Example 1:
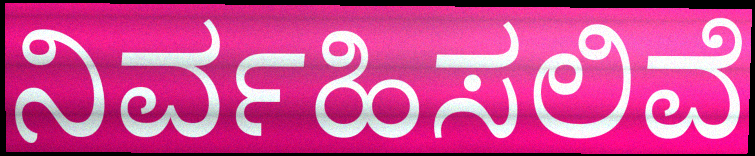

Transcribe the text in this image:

ನಿರ್ವಹಿಸಲಿವೆ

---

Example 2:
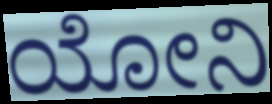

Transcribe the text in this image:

ಯೋನಿ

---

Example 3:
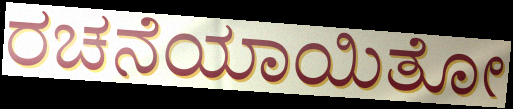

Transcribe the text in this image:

ರಚನೆಯಾಯಿತೋ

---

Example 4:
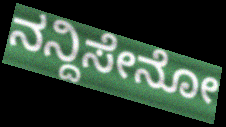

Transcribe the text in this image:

ನನ್ದಿಸೇನೋ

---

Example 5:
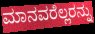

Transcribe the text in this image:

ಮಾನವರೆಲ್ಲರನ್ನು